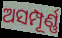
ଅସମ୍ପୂର୍ଣ୍ଣ